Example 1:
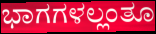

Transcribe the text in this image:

ಭಾಗಗಳಲ್ಲಂತೂ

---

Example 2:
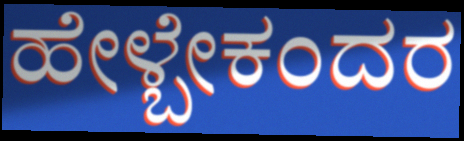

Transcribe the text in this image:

ಹೇಳ್ಬೇಕಂದರ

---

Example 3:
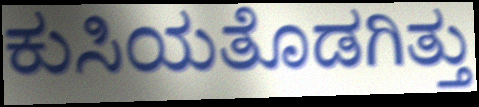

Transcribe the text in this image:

ಕುಸಿಯತೊಡಗಿತ್ತು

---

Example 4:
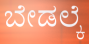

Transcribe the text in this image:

ಬೇಡಲ್ಕೆ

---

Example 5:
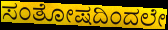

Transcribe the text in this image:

ಸಂತೋಷದಿಂದಲೇ